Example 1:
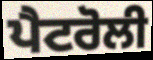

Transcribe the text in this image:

ਪੈਟਰੋਲੀ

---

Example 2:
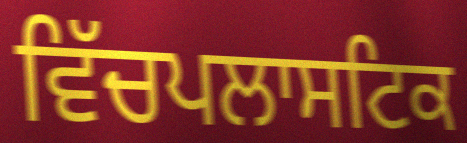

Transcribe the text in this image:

ਵਿੱਚਪਲਾਸਟਿਕ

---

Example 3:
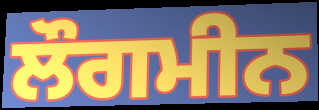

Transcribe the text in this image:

ਲੌਗਮੀਨ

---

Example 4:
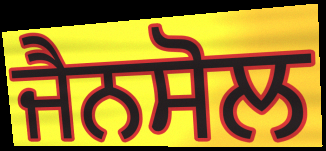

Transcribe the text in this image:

ਜੈਨਸੋਲ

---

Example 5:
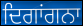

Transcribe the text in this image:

ਦਿਗਾਂਗਨਾ